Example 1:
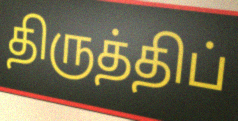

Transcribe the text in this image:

திருத்திப்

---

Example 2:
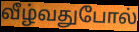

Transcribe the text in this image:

வீழ்வதுபோல்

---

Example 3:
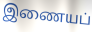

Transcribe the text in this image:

இணையப்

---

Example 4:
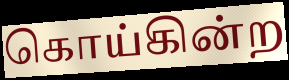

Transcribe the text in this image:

கொய்கின்ற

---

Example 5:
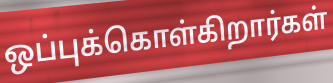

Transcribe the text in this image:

ஒப்புக்கொள்கிறார்கள்